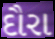
દૌરા